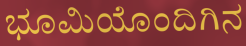
ಭೂಮಿಯೊಂದಿಗಿನ